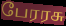
பேரரசு